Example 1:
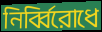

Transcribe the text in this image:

নির্ব্বিরোধে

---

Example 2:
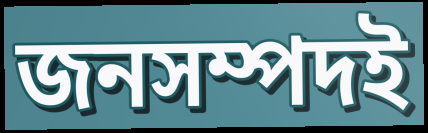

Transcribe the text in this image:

জনসম্পদই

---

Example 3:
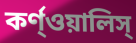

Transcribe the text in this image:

কর্ণ্ওয়ালিস্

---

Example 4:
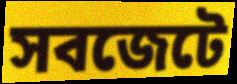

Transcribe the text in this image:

সবজেটে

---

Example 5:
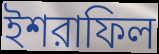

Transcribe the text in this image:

ইশরাফিল